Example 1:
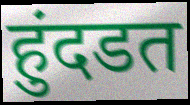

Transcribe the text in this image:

हुंदडत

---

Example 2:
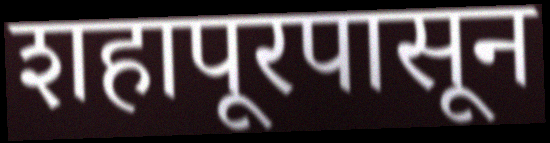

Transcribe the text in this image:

शहापूरपासून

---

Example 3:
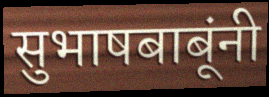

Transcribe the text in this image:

सुभाषबाबूंनी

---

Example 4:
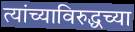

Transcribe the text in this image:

त्यांच्याविरुद्धच्या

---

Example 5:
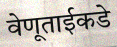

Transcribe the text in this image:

वेणूताईकडे